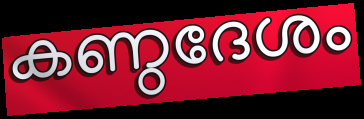
കണ്ഠദേശം